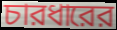
চারধারের